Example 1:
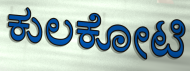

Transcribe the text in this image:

ಕುಲಕೋಟಿ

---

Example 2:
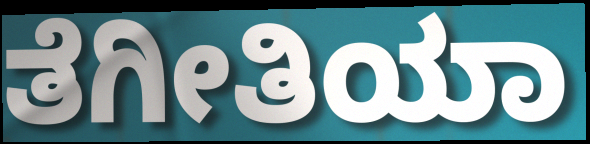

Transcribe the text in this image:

ತೆಗೀತಿಯಾ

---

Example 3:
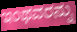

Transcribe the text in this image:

ಇಂಥವರನ್ನು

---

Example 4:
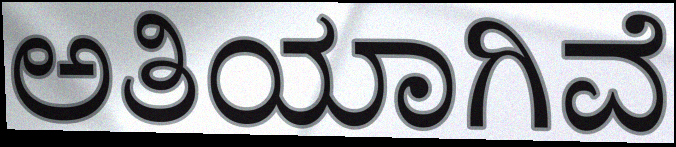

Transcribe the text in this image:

ಅತಿಯಾಗಿವೆ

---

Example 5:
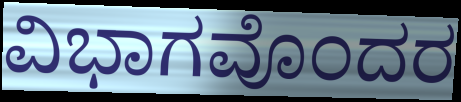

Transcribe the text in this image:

ವಿಭಾಗವೊಂದರ